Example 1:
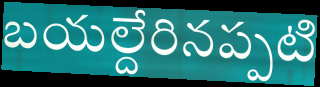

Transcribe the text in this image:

బయల్దేరినప్పటి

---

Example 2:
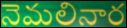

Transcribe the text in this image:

నెమలినార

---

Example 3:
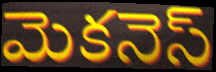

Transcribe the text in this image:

మెకనెస్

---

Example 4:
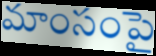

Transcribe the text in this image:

మాంసంపై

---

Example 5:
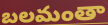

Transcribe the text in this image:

బలమంతా